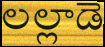
లల్లాడె